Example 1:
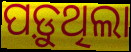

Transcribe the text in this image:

ପଡ଼ୁଥିଲା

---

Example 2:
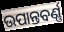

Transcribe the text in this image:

ଉପାନ୍ତବର୍ଣ୍ଣ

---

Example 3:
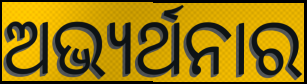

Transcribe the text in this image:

ଅଭ୍ୟର୍ଥନାର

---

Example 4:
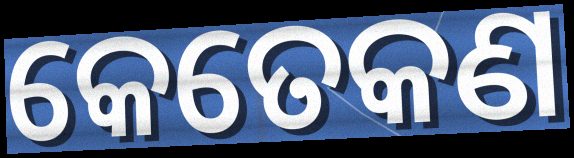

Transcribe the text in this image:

କେତେକଣ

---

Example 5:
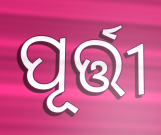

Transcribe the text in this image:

ପୂର୍ତ୍ତୀ